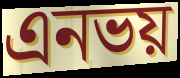
এনভয়